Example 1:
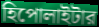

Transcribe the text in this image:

হিপোলাইটার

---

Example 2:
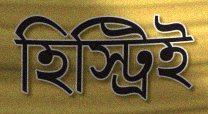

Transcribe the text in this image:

হিস্ট্রিই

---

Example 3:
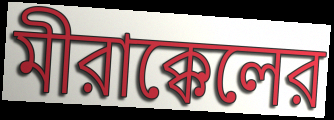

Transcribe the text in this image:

মীরাক্কেলের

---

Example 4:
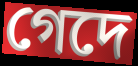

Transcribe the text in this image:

গেদে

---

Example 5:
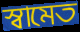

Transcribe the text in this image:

স্বামেত